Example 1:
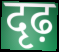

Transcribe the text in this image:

दृढ़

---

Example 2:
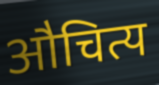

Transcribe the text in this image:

औचित्य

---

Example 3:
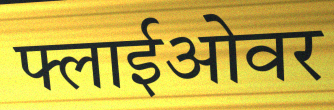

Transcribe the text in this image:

फ्लाईओवर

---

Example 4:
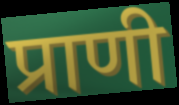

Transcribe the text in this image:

प्राणी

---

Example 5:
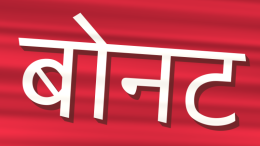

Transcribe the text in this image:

बोनट